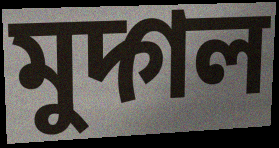
মুদ্গল